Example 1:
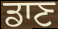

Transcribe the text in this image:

ਡਾਣ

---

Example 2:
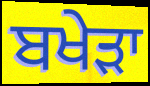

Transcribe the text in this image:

ਬਖੇੜਾ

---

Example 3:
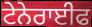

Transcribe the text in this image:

ਟੇਨੇਰਾਈਫ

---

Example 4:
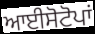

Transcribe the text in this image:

ਆਈਸੋਟੋਪਾਂ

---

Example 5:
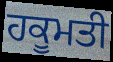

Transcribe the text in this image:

ਹਕੂਮਤੀ